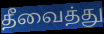
தீவைத்து